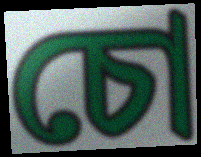
চো